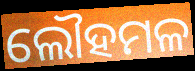
ଲୌହମଳ